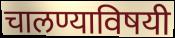
चालण्याविषयी